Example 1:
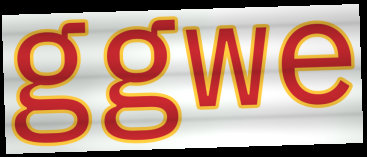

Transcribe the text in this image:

ggwe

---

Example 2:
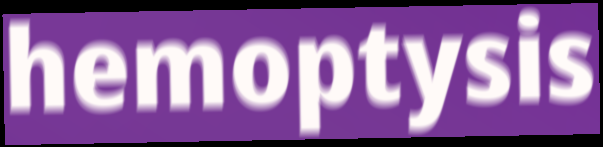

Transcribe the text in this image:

hemoptysis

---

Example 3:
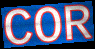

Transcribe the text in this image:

COR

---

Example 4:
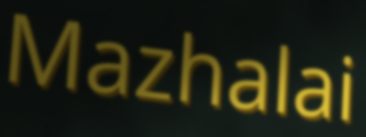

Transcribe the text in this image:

Mazhalai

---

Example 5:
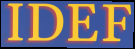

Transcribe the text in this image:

IDEF